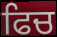
ਫਿਚ